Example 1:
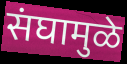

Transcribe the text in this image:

संघामुळे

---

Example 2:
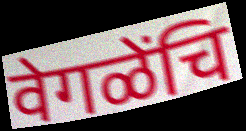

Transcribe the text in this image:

वेगळेंचि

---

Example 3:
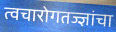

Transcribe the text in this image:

त्वचारोगतज्ज्ञांचा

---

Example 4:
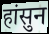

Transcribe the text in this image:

हांसुन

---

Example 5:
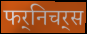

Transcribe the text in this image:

फर्निचर्स